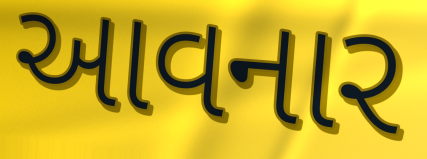
આવનાર